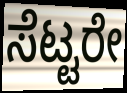
ಸೆಟ್ಟರೇ